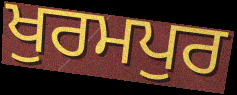
ਖੁਰਮਪੁਰ